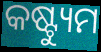
କଷ୍ଟ୍ୟୁମ